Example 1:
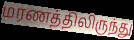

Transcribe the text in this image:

மரணத்திலிருந்து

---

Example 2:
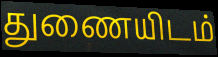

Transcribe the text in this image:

துணையிடம்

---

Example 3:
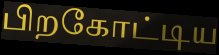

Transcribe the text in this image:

பிறகோட்டிய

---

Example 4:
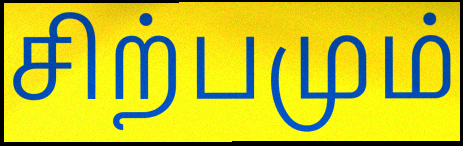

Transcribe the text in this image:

சிற்பமும்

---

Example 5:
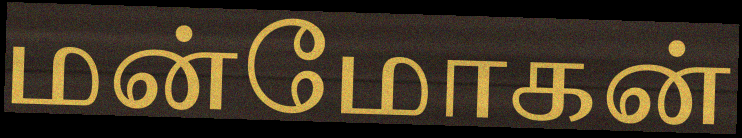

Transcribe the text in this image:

மன்மோகன்